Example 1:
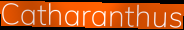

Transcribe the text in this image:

Catharanthus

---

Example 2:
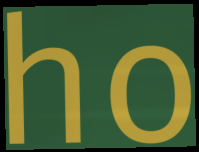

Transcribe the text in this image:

ho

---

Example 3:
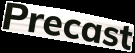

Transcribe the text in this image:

Precast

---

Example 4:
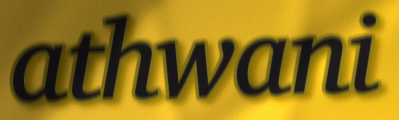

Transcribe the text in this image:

athwani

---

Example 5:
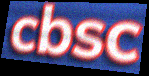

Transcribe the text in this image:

cbsc